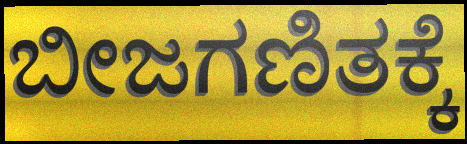
ಬೀಜಗಣಿತಕ್ಕೆ